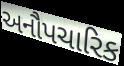
અનૌપચારિક